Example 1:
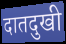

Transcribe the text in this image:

दातदुखी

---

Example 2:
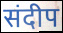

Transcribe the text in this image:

संदीप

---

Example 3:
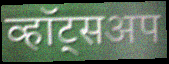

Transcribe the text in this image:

व्हॉट्सअप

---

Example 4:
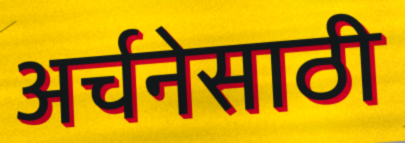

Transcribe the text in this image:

अर्चनेसाठी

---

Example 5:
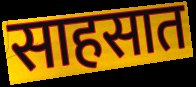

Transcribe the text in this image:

साहसात